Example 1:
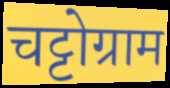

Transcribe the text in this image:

चट्टोग्राम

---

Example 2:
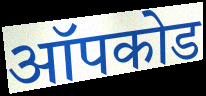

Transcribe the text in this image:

ऑपकोड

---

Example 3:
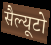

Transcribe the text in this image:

सैल्यूटो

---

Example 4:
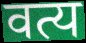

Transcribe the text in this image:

वत्य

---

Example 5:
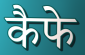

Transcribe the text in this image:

कैफे